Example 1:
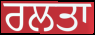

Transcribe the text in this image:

ਰਲਤਾ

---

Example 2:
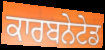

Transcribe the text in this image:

ਕਾਰਬਨੇਟੇਡ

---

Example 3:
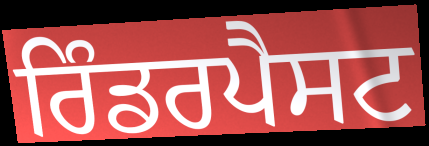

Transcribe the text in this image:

ਰਿੰਡਰਪੈਸਟ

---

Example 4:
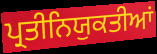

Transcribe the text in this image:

ਪ੍ਰਤੀਨਿਯੁਕਤੀਆਂ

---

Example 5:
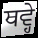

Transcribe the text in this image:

ਥਵ੍ਹੇ